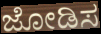
ಜೋಡಿಸ